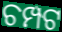
ଚମ୍ପଟ